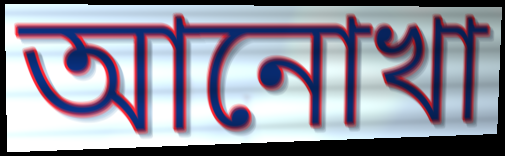
আনোখা